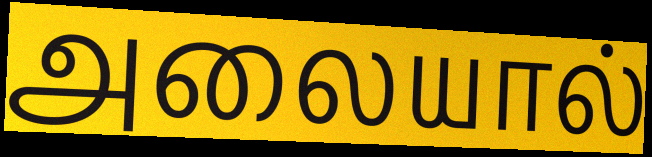
அலையால்